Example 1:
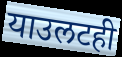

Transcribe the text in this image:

याउलटही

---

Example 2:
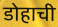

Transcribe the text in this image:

डोहाची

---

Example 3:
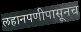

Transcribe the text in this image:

लहानपणीपासूनच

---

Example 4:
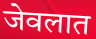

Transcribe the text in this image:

जेवलात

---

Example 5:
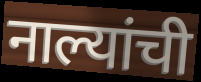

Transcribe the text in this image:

नाल्यांची